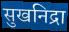
सुखनिद्रा